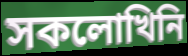
সকলোখিনি